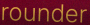
rounder